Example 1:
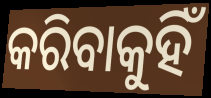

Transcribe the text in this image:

କରିବାକୁହିଁ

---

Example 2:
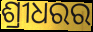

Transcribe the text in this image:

ଶ୍ରୀଧରର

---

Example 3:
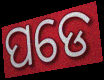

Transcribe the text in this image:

ପଡେ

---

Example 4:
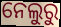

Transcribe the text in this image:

ନେଲୁରୁ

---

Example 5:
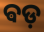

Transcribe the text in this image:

ଵଡ଼